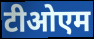
टीओएम